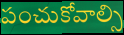
పంచుకోవాల్సి